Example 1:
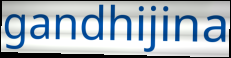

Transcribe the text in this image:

gandhijina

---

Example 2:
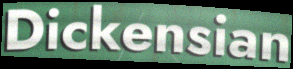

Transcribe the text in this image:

Dickensian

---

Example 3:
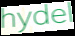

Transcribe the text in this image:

hydel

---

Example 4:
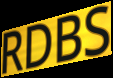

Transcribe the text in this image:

RDBS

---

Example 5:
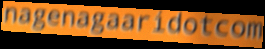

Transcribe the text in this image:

nagenagaaridotcom